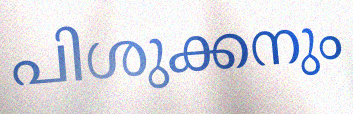
പിശുക്കനും